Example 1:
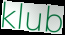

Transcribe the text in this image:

klub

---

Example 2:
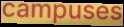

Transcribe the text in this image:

campuses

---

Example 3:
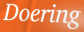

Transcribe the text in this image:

Doering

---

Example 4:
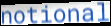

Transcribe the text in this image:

notional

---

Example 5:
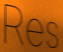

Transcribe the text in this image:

Res